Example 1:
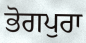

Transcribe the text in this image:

ਭੋਗਪੁਰਾ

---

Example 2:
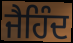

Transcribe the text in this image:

ਜੈਹਿੰਦ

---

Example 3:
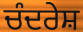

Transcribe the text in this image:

ਚੰਦਰੇਸ਼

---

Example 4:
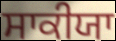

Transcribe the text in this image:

ਸਾਕੀਯਾ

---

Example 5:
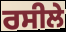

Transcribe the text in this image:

ਰਸੀਲੇ